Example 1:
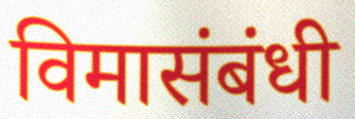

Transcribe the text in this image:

विमासंबंधी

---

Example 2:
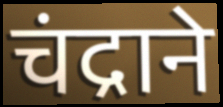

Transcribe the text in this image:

चंद्राने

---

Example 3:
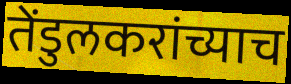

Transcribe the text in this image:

तेंडुलकरांच्याच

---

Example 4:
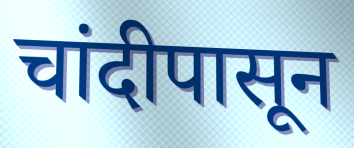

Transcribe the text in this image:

चांदीपासून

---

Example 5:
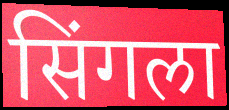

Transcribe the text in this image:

सिंगला